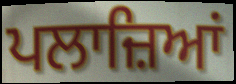
ਪਲਾਜ਼ਿਆਂ